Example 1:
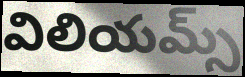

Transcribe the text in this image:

విలియమ్స్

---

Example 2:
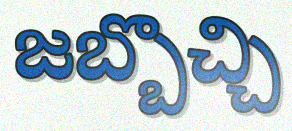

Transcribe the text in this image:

జబ్బొచ్చి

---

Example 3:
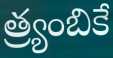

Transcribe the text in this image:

త్ర్యంబికే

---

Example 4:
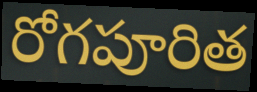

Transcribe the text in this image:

రోగపూరిత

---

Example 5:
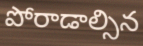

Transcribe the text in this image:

పోరాడాల్సిన